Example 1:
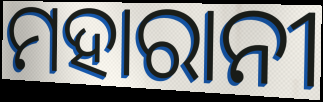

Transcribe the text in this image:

ମହାରାନୀ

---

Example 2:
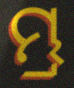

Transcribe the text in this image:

ମ୍ଭ୍ର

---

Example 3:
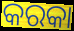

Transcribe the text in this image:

କରକା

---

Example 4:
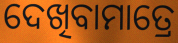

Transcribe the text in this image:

ଦେଖିବାମାତ୍ରେ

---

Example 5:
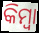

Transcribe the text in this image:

କିମ୍ବା